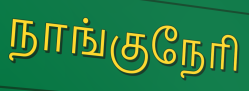
நாங்குநேரி